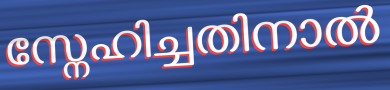
സ്നേഹിച്ചതിനാൽ